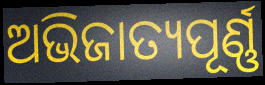
ଅଭିଜାତ୍ୟପୂର୍ଣ୍ଣ